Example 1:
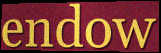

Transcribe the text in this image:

endow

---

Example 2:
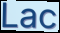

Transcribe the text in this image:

Lac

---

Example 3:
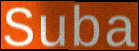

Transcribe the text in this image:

Suba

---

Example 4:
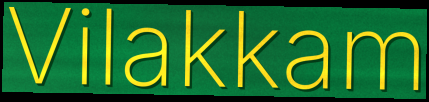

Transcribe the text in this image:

Vilakkam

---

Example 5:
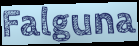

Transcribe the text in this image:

Falguna